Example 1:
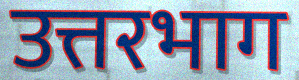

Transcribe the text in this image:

उत्तरभाग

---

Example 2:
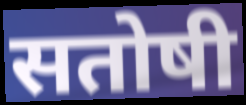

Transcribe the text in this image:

सतोषी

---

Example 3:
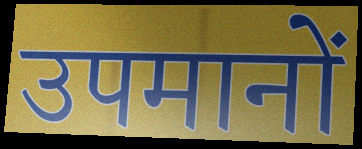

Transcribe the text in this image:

उपमानों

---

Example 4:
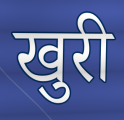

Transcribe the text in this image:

खुरी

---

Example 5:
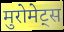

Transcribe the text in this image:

मुरोमेट्स